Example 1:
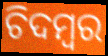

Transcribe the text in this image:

ଚିଦମ୍ବର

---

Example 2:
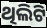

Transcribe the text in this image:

ଥିଲିଟି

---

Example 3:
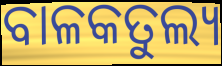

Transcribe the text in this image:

ବାଳକତୁଲ୍ୟ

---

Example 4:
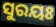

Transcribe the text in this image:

ସୁରୟଃ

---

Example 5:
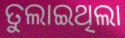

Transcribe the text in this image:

ତୁଲାଇଥିଲା